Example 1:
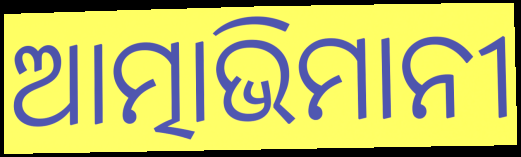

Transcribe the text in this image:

ଆତ୍ମାଭିମାନୀ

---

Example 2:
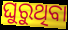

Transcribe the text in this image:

ଘୁରୁଥିବା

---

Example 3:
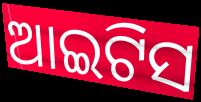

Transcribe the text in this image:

ଆଇଟିସ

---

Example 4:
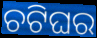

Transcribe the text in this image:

ଚଟିଘର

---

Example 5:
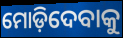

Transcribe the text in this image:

ମୋଡ଼ିଦେବାକୁ